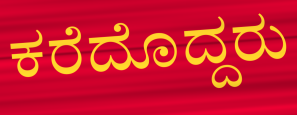
ಕರೆದೊದ್ದರು